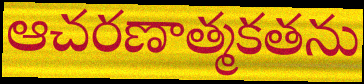
ఆచరణాత్మకతను